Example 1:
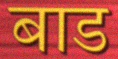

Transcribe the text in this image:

बाड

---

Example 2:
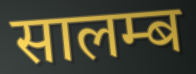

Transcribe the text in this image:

सालम्ब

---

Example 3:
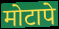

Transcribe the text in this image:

मोटापे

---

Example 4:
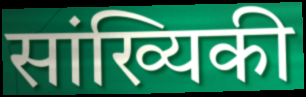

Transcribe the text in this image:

सांख्यिकी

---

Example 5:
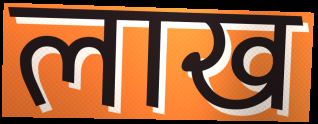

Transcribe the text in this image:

लाख